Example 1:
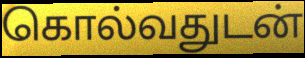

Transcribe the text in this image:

கொல்வதுடன்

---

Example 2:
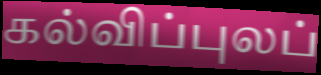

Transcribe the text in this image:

கல்விப்புலப்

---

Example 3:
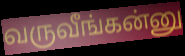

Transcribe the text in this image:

வருவீங்கன்னு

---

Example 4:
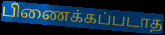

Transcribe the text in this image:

பிணைக்கப்படாத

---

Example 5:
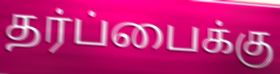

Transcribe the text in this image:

தர்ப்பைக்கு